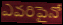
ఎవరిపైనో